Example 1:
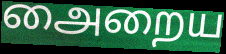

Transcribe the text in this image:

அைறைய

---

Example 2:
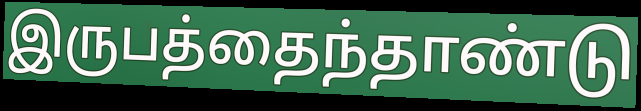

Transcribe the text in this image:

இருபத்தைந்தாண்டு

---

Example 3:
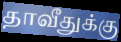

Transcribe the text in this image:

தாவீதுக்கு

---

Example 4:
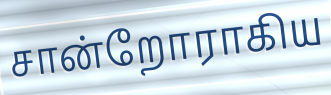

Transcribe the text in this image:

சான்றோராகிய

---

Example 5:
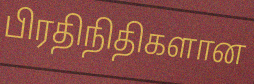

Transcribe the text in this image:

பிரதிநிதிகளான